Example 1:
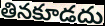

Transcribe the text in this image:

తినకూడదు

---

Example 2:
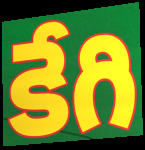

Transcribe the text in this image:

కేగి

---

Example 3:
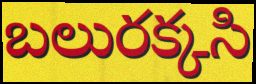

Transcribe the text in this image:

బలురక్కసి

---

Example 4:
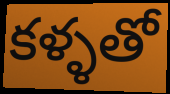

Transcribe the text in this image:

కళ్ళతో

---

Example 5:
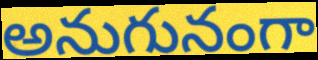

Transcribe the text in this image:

అనుగునంగా